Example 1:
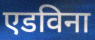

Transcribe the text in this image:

एडविना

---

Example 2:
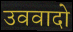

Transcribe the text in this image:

उववादो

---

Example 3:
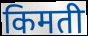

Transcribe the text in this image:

किमती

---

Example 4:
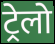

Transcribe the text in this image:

ट्रेलो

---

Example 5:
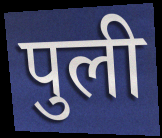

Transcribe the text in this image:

पुली